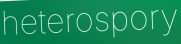
heterospory